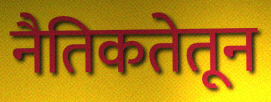
नैतिकतेतून